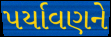
પર્યાવણને